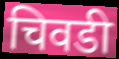
चिवडी